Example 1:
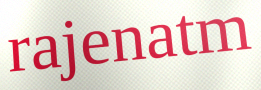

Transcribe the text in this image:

rajenatm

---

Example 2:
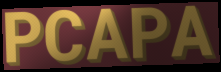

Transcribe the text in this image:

PCAPA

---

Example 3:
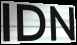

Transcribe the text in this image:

IDN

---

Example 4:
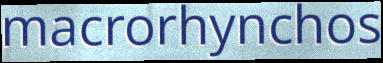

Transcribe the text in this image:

macrorhynchos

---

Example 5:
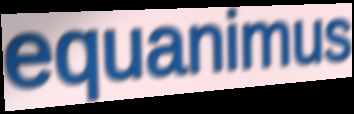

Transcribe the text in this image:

equanimus